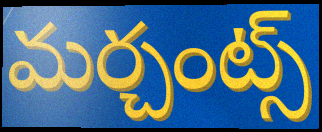
మర్చంట్స్